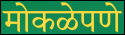
मोकळेपणे